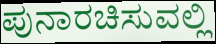
ಪುನಾರಚಿಸುವಲ್ಲಿ